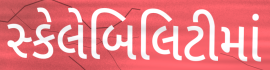
સ્કેલેબિલિટીમાં